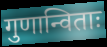
गुणान्विताः